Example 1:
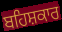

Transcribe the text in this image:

ਬਹਿਸ਼ਕਾਰ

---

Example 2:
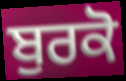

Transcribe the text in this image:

ਬੁਰਕੋ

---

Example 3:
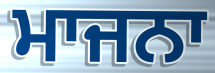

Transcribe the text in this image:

ਮਾਜਨਾ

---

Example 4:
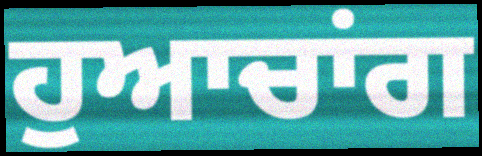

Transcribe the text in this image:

ਹੁਆਚਾਂਗ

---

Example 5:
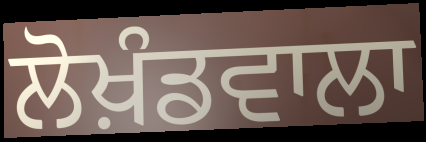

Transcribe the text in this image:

ਲੋਖ਼ੰਡਵਾਲਾ